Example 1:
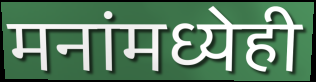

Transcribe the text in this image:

मनांमध्येही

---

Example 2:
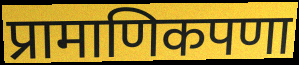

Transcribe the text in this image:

प्रामाणिकपणा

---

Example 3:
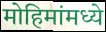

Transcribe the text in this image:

मोहिमांमध्ये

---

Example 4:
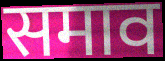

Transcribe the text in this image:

समाव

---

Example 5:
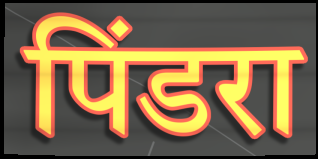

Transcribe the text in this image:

पिंडरा